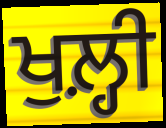
ਖੁਲ਼੍ਹੀ